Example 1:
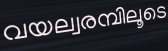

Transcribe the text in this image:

വയല്വരമ്പിലൂടെ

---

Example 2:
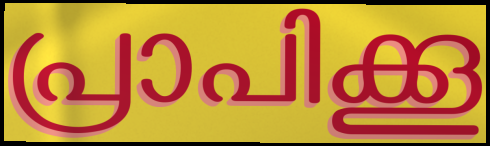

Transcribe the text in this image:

പ്രാപിക്കൂ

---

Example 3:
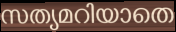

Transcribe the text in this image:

സത്യമറിയാതെ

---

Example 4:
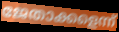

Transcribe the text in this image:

ജേതാക്കളെന്ന്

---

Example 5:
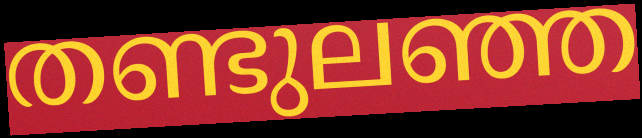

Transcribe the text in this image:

തണ്ടുലഞ്ഞ